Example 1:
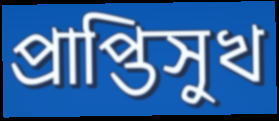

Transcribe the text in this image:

প্রাপ্তিসুখ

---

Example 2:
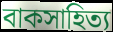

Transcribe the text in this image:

বাকসাহিত্য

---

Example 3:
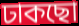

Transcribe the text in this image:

ঢাকছো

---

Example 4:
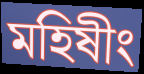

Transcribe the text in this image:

মহিষীং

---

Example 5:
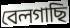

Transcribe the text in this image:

বেলগাছি